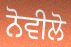
ਨੋਵੀਲੋ